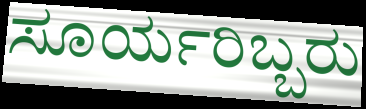
ಸೂರ್ಯರಿಬ್ಬರು